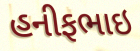
હનીફભાઇ